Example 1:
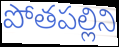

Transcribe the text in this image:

పోతపల్లిని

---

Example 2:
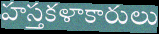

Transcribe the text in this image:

హస్తకళాకారులు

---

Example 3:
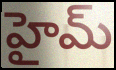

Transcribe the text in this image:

హైమ్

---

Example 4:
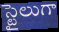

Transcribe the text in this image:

స్టైలుగా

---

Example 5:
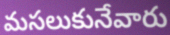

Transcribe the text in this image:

మసలుకునేవారు